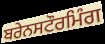
ਬਰੇਨਸਟੌਰਮਿੰਗ